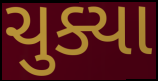
ચુક્યા